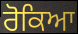
ਰੋਕਿਆ